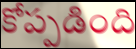
కోప్పడింది